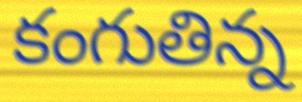
కంగుతిన్న